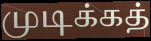
முடிக்கத்